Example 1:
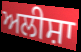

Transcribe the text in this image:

ਅਲੀਸ਼ਾ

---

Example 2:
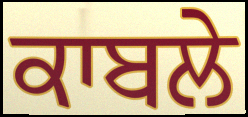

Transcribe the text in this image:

ਕਾਬਲੇ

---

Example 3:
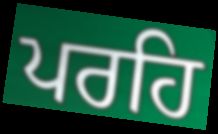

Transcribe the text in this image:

ਪਰਹਿ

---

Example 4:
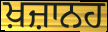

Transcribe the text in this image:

ਖ਼ਜ਼ਾਨਹ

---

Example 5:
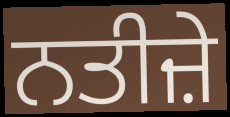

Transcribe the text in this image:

ਨਤੀਜ਼ੇ